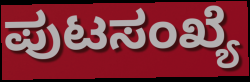
ಪುಟಸಂಖ್ಯೆ